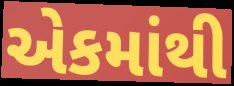
એકમાંથી